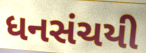
ધનસંચયી